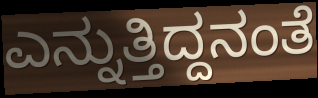
ಎನ್ನುತ್ತಿದ್ದನಂತೆ